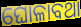
ଘୋଳାବଥା